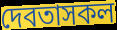
দেবতাসকল